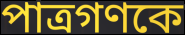
পাত্রগণকে